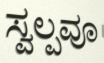
ಸ್ವಲ್ಪವೂ